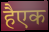
हैएक